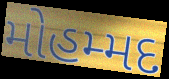
મોહમ્મદ